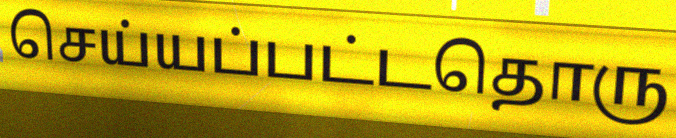
செய்யப்பட்டதொரு